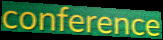
conference